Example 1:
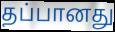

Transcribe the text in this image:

தப்பானது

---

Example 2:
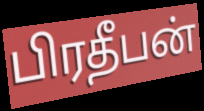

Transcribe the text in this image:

பிரதீபன்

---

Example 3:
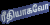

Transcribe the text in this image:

ரீதியாகவோ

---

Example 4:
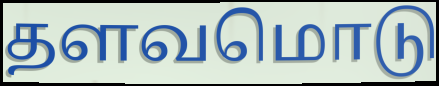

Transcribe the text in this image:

தளவமொடு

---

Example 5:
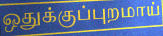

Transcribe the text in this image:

ஒதுக்குப்புறமாய்